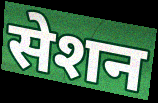
सेशन